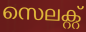
സെലക്റ്റ്